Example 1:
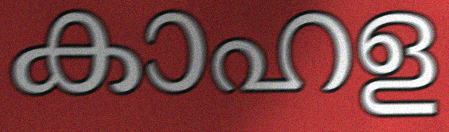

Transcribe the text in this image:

കാഹള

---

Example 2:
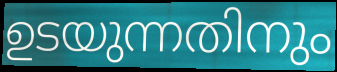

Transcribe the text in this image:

ഉടയുന്നതിനും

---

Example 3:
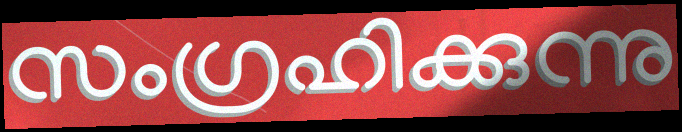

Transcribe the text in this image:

സംഗ്രഹിക്കുന്നു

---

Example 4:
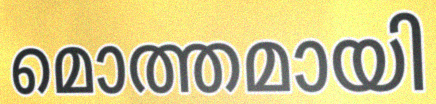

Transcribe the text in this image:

മൊത്തമായി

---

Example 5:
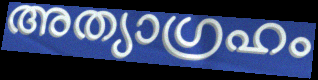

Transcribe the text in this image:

അത്യാഗ്രഹം